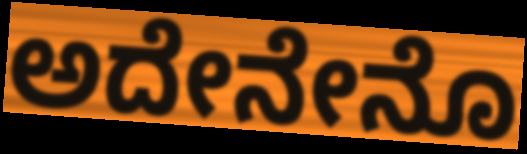
ಅದೇನೇನೊ